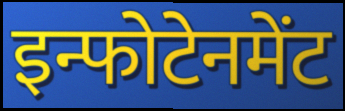
इन्फोटेनमेंट